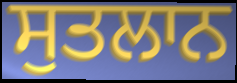
ਸੁਤਲਾਨ